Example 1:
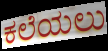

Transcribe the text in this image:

ಕಲೆಯಲು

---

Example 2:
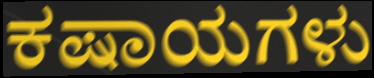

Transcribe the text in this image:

ಕಷಾಯಗಳು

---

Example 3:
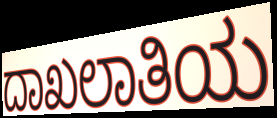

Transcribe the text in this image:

ದಾಖಲಾತಿಯ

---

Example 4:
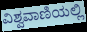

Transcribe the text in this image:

ವಿಶ್ವವಾಣಿಯಲ್ಲಿ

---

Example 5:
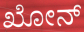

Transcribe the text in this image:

ಖೋನ್